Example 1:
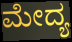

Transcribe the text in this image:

ಮೇದ್ಯ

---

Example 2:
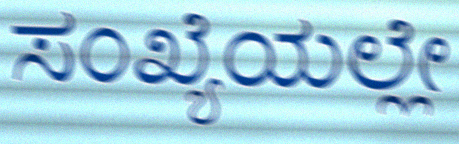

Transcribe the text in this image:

ಸಂಖ್ಯೆಯಲ್ಲೇ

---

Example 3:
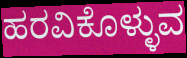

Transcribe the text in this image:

ಹರವಿಕೊಳ್ಳುವ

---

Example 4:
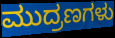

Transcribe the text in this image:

ಮುದ್ರಣಗಳು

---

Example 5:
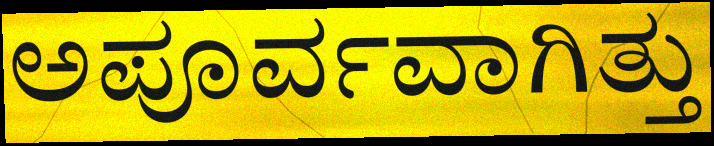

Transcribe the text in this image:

ಅಪೂರ್ವವಾಗಿತ್ತು